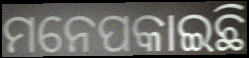
ମନେପକାଇଛି